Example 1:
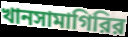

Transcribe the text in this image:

খানসামাগিরির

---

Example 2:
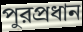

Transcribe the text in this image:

পুরপ্রধান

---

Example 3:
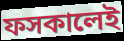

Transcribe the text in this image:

ফসকালেই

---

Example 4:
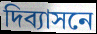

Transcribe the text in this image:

দিব্যাসনে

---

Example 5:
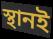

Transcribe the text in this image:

স্থানই